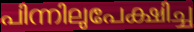
പിന്നിലുപേക്ഷിച്ച